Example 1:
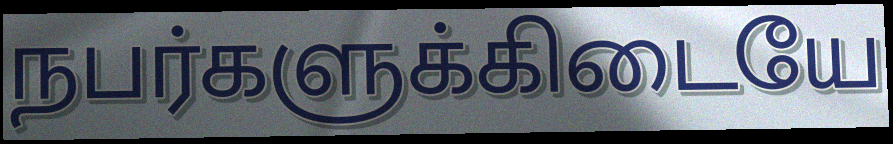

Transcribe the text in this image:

நபர்களுக்கிடையே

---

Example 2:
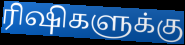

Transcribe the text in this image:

ரிஷிகளுக்கு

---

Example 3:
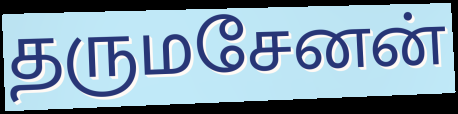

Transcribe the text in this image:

தருமசேனன்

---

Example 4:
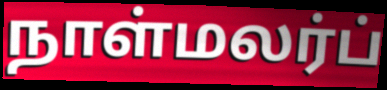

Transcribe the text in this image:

நாள்மலர்ப்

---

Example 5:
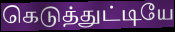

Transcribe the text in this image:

கெடுத்துட்டியே